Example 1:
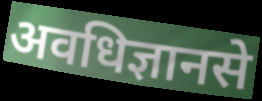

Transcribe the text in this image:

अवधिज्ञानसे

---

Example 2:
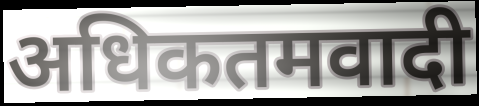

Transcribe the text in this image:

अधिकतमवादी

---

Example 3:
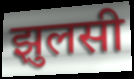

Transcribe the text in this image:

झुलसी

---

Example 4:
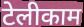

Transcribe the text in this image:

टेलीकाम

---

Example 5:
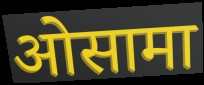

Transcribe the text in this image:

ओसामा